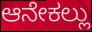
ಆನೇಕಲ್ಲು